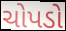
ચોપડો